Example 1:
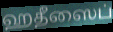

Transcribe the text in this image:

ஹதீஸைப்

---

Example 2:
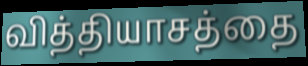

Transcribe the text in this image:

வித்தியாசத்தை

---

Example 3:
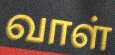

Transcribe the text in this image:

வாள்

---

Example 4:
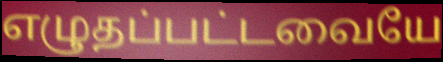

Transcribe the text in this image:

எழுதப்பட்டவையே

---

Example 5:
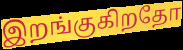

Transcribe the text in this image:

இறங்குகிறதோ